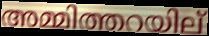
അമ്മിത്തറയില്